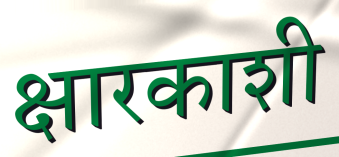
क्षारकाशी